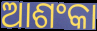
ଆଶଂକା